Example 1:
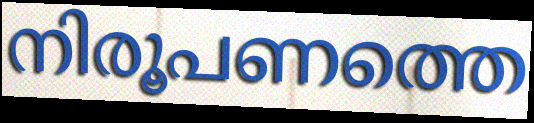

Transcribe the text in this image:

നിരൂപണത്തെ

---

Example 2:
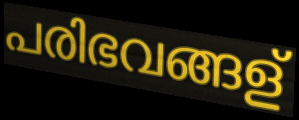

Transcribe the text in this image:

പരിഭവങ്ങള്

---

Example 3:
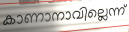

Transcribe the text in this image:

കാണാനാവില്ലെന്ന്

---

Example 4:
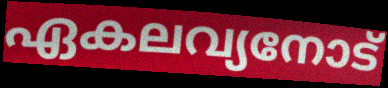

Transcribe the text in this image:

ഏകലവ്യനോട്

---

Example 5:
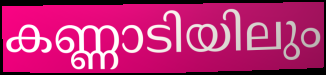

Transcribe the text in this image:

കണ്ണാടിയിലും